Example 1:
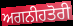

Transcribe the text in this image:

ਅਗਨੀਹਤੋਰੀ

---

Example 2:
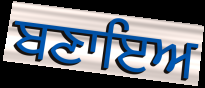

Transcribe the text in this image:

ਬਣਾਇਅ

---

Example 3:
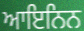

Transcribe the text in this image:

ਆਇਨਿਨ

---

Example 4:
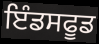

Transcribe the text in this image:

ਇੰਡਸਫੂਡ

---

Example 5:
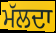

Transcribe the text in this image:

ਮੱਲਦਾ